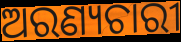
ଅରଣ୍ୟଚାରୀ